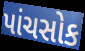
પાંચસોક